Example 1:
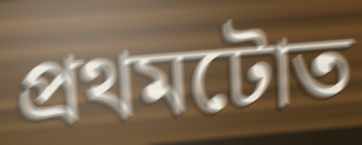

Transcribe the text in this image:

প্ৰথমটোত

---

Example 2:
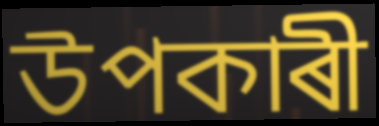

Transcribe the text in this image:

উপকাৰী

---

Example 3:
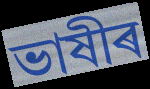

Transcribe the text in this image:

ভাষীৰ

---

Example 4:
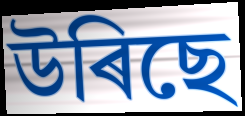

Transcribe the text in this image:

উৰিছে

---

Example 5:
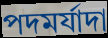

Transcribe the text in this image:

পদমৰ্যাদা